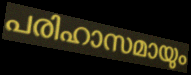
പരിഹാസമായും